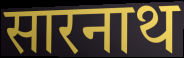
सारनाथ